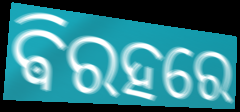
ଵିରହରେ